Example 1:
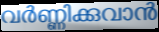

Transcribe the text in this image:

വർണ്ണിക്കുവാൻ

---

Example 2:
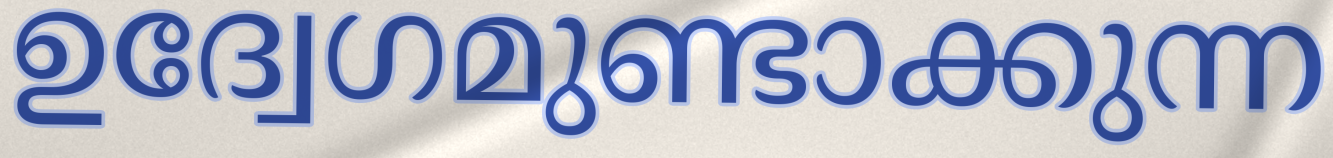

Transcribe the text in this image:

ഉദ്വേഗമുണ്ടാക്കുന്ന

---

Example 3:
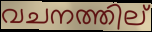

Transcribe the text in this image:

വചനത്തില്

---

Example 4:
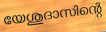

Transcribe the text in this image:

യേശുദാസിന്റെ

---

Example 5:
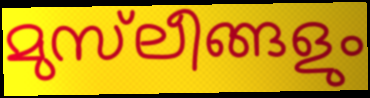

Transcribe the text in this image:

മുസ്‌ലീങ്ങളും